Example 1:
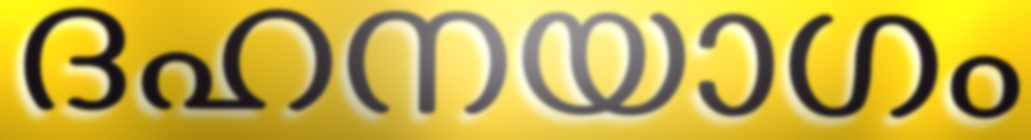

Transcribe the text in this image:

ദഹനയാഗം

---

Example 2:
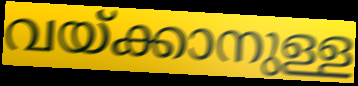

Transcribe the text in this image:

വയ്ക്കാനുള്ള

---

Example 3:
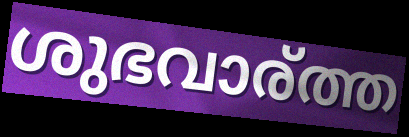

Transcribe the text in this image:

ശുഭവാര്ത്ത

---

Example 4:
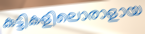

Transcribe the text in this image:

കുട്ടികളിലൊരാളായ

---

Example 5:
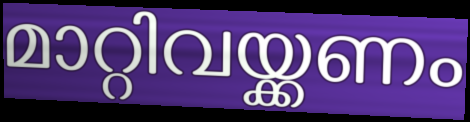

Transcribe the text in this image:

മാറ്റിവയ്ക്കണം